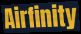
Airfinity